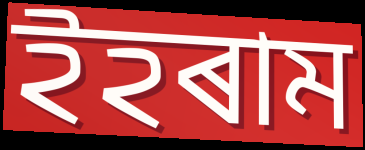
ইহৰাম